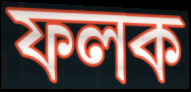
ফলক